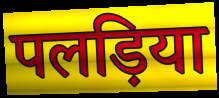
पलड़िया